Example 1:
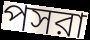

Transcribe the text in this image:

পসরা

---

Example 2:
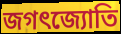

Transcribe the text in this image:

জগৎজ্যোতি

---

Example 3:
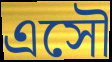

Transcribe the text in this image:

এসৌ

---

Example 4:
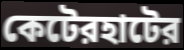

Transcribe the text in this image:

কেটেরহাটের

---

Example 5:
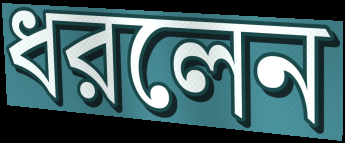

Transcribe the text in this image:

ধরলেন